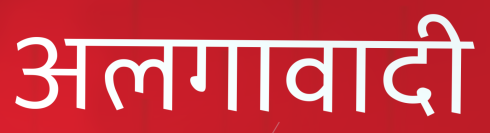
अलगावादी